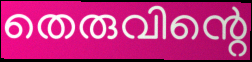
തെരുവിന്റെ